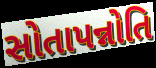
સોતાપન્નોતિ